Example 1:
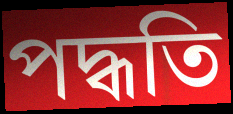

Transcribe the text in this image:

পদ্ধতি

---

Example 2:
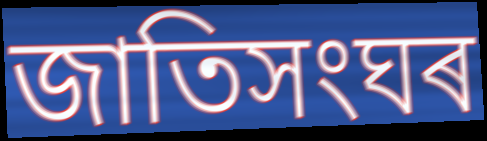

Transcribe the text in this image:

জাতিসংঘৰ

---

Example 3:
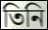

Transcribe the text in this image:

তিনি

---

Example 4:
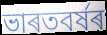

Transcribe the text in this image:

ভাৰতবৰ্ষৰ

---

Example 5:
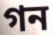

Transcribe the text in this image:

গন